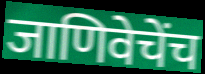
जाणिवेचेंच